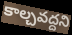
కాల్చవద్దని